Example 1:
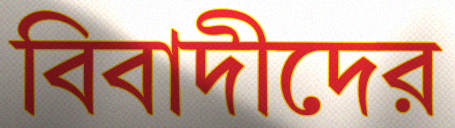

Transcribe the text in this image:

বিবাদীদের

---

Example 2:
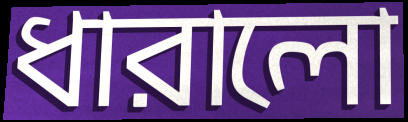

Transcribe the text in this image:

ধারালো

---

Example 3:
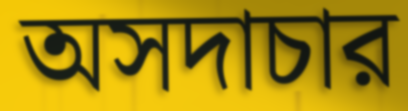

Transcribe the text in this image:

অসদাচার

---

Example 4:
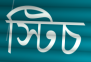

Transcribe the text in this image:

স্টিচ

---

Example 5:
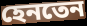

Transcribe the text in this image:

হেনতেন